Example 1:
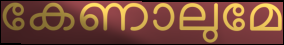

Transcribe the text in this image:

കേണാലുമേ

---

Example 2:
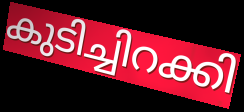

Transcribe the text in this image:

കുടിച്ചിറക്കി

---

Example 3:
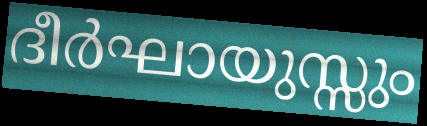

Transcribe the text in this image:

ദീർഘായുസ്സും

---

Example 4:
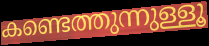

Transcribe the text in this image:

കണ്ടെത്തുന്നുള്ളൂ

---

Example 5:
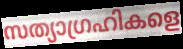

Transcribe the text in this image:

സത്യാഗ്രഹികളെ